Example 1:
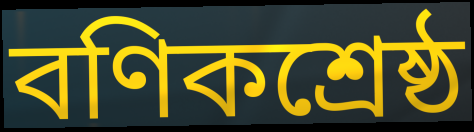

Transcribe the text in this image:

বণিকশ্রেষ্ঠ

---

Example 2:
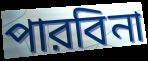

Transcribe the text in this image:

পারবিনা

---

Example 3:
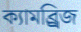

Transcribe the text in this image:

ক্যামব্র্রিজ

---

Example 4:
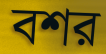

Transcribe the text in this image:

বশর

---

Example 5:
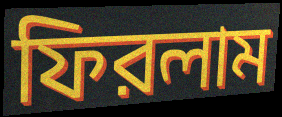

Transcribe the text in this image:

ফিরলাম